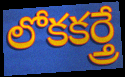
లోకకర్త్రే